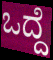
ಒದ್ದೆ